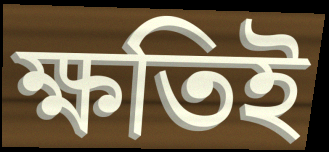
ক্ষতিই